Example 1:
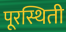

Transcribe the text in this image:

पूरस्थिती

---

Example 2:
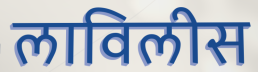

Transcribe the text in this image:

लाविलीस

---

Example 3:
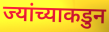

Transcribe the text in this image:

ज्यांच्याकडुन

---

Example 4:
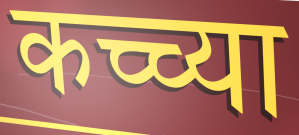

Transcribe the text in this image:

कच्च्या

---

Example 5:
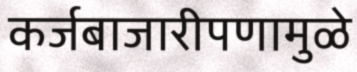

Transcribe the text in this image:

कर्जबाजारीपणामुळे